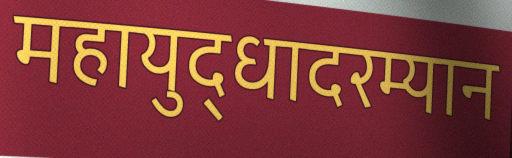
महायुद्धादरम्यान